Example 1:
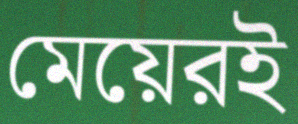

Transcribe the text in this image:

মেয়েরই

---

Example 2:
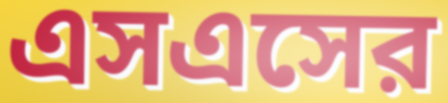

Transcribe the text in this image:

এসএসের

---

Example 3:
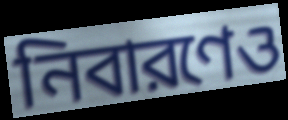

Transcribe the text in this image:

নিবারণেও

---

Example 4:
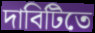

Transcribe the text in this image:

দাবিটিতে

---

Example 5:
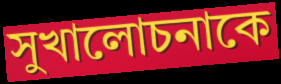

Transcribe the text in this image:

সুখালোচনাকে